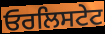
ਓਰਲਿਸਟੇਟ